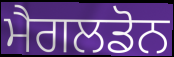
ਮੈਗਲਡੋਨ